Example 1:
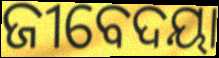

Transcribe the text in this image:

ଜୀବେଦୟା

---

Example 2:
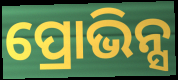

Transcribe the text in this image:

ପ୍ରୋଭିନ୍ସ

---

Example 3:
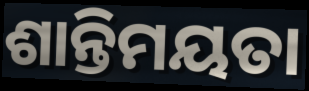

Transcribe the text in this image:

ଶାନ୍ତିମୟତା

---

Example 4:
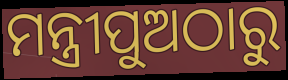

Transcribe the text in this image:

ମନ୍ତ୍ରୀପୁଅଠାରୁ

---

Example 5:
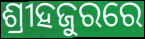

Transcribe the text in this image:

ଶ୍ରୀହଜୁରରେ